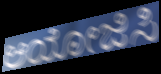
ಆಯೋಜಿಸಿ